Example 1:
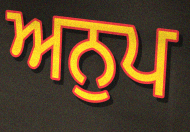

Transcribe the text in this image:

ਅਨੁਪ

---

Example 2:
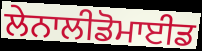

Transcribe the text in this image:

ਲੇਨਾਲੀਡੋਮਾਈਡ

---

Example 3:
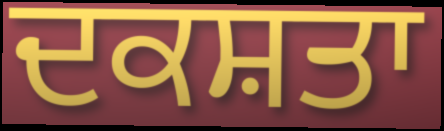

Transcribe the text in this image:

ਦਕਸ਼ਤਾ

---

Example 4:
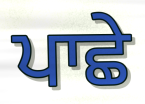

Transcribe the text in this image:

ਪਾਛੇ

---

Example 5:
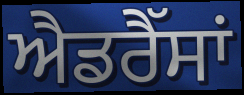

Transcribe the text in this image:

ਐਡਰੈੱਸਾਂ